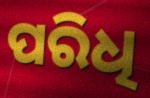
ପରିଧି